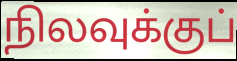
நிலவுக்குப்